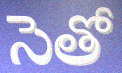
సెతో